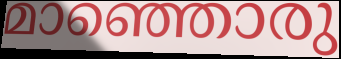
മാഞ്ഞൊരു